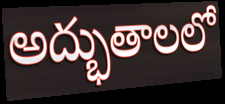
అద్భుతాలలో